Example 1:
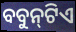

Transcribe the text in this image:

ବବୁନ୍‍ଟିଏ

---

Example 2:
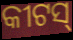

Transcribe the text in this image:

କୀଟସ୍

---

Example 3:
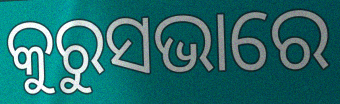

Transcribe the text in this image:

କୁରୁସଭାରେ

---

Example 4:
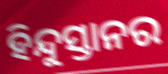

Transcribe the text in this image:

ହିନ୍ଦୁସ୍ତାନର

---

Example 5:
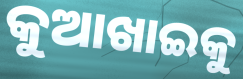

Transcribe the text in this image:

କୁଆଖାଇକୁ